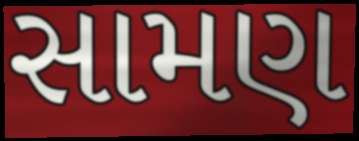
સામણ